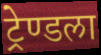
ट्रेण्डला